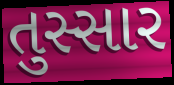
તુસ્સાર